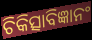
ଚିକିତ୍ସାବିଜ୍ଞାନଂ